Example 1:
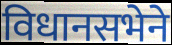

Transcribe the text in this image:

विधानसभेने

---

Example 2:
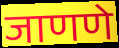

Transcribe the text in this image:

जाणणे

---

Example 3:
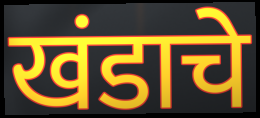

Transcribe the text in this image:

खंडाचे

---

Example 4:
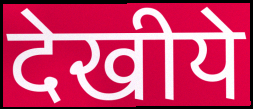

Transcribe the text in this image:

देखीये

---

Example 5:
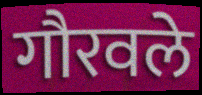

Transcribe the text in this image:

गौरवले